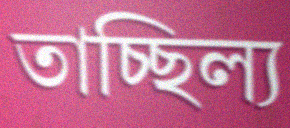
তাচ্ছিল্য